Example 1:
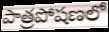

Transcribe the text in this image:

పాత్రపోషణలో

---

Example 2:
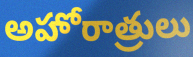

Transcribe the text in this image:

అహోరాత్రులు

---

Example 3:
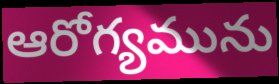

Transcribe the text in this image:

ఆరోగ్యమును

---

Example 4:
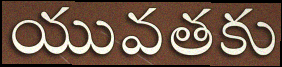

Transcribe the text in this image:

యువతకు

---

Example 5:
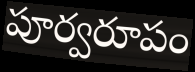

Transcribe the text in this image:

పూర్వరూపం